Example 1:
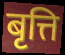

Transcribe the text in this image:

बृत्ति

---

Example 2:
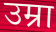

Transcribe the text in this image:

उम्रा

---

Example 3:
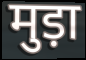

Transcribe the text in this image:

मुड़ा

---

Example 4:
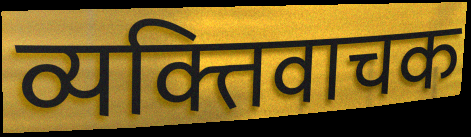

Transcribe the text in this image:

व्यक्तिवाचक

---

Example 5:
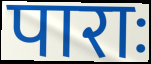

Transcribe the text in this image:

पाराः